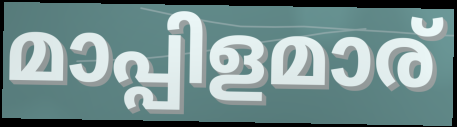
മാപ്പിളമാര്